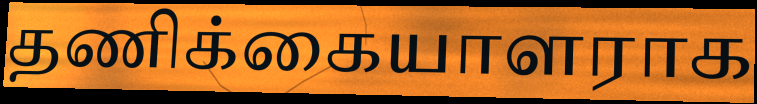
தணிக்கையாளராக